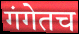
गंगेतच